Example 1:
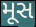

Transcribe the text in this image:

મૂસ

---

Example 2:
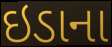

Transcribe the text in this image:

ઇડાના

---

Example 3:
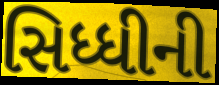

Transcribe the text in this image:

સિધ્ધીની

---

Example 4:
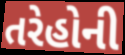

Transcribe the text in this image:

તરેહોની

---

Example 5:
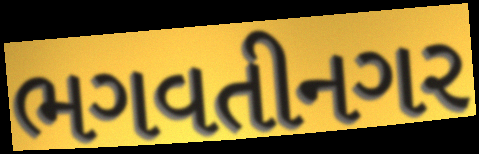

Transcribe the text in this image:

ભગવતીનગર